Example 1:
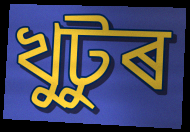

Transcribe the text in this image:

খুটুৰ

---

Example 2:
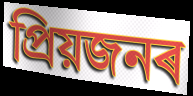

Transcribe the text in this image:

প্ৰিয়জনৰ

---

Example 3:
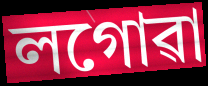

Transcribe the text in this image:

লগোৱা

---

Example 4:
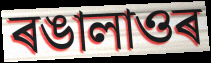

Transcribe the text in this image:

ৰঙালাওৰ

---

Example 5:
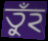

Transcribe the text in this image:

তুঁহ